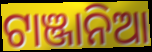
ଟାଞ୍ଜାନିଆ